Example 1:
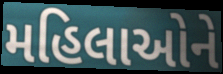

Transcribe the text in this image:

મહિલાઓને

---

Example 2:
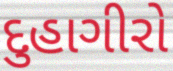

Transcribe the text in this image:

દુહાગીરો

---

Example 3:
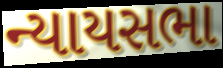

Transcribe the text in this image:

ન્યાયસભા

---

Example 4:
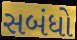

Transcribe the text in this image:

સબંધો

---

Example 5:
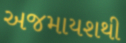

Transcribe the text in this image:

અજમાયશથી